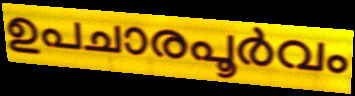
ഉപചാരപൂർവം